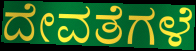
ದೇವತೆಗಳೆ